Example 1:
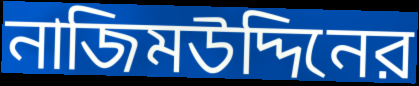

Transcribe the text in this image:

নাজিমউদ্দিনের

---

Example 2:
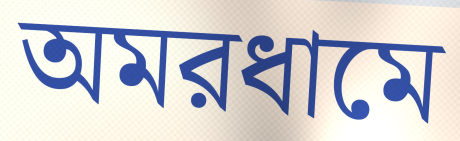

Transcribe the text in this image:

অমরধামে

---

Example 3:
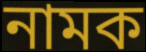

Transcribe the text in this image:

নামক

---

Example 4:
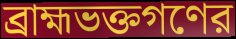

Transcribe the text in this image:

ব্রাহ্মভক্তগণের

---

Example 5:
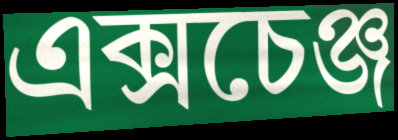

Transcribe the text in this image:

এক্সচেঞ্জ